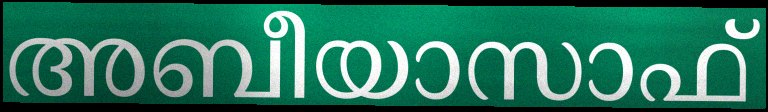
അബീയാസാഫ്